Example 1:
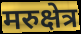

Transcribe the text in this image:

मरुक्षेत्र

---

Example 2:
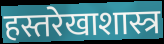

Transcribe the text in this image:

हस्तरेखाशास्त्र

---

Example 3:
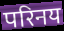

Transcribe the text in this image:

परिनय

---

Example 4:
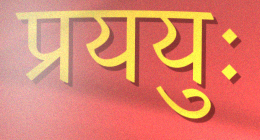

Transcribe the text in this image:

प्रययुः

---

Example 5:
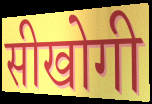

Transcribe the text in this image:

सीखोगी